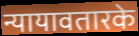
न्यायावतारके